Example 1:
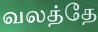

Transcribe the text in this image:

வலத்தே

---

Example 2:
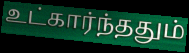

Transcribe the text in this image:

உட்கார்ந்ததும்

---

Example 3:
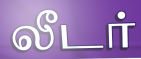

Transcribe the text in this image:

லீடர்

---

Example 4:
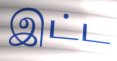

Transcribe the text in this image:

இட்ட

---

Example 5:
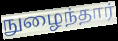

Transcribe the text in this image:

நுழைந்தார்